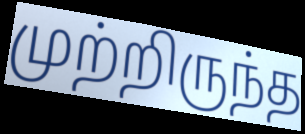
முற்றிருந்த